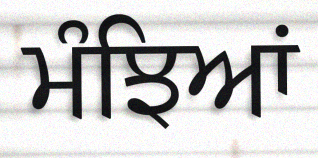
ਮੰਝਿਆਂ